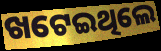
ଖଟେଇଥିଲେ